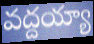
వద్దయ్యా